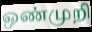
ஒண்முறி